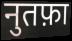
नुतफ़ा